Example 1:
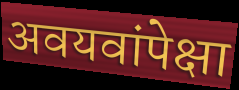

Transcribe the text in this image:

अवयवांपेक्षा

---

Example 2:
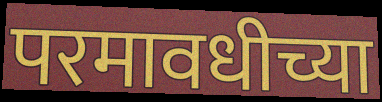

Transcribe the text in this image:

परमावधीच्या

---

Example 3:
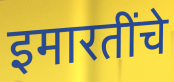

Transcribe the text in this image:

इमारतींचे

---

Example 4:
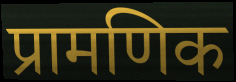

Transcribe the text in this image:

प्रामणिक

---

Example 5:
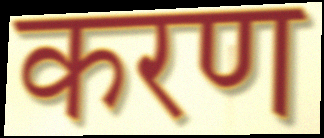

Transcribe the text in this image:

करण